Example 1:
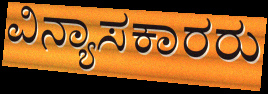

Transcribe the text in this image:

ವಿನ್ಯಾಸಕಾರರು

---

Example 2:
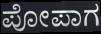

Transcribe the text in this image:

ಪೋಪಾಗ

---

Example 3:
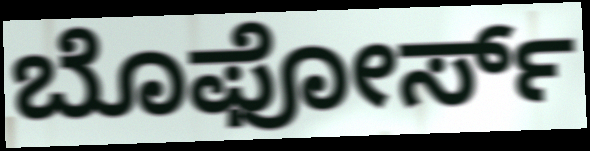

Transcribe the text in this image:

ಬೊಫೋರ್ಸ್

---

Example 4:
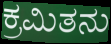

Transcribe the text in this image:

ಕ್ರಮಿತನು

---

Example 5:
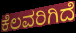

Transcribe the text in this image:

ಕೆಲವರಿಗಿದೆ